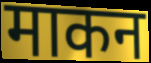
माकन